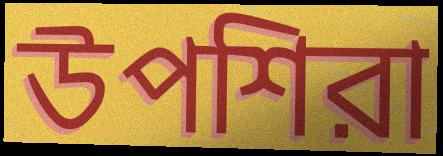
উপশিরা